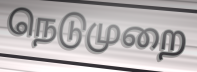
நெடுமுறை